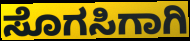
ಸೊಗಸಿಗಾಗಿ